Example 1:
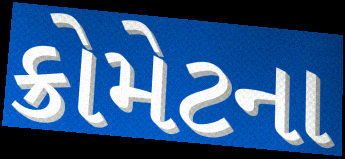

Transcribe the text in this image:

ક્રોમેટના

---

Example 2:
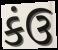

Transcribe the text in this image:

કંઉ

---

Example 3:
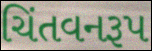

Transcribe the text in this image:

ચિંતવનરૂપ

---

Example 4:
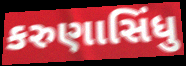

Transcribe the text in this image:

કરુણાસિંધુ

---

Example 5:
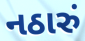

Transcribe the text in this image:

નઠારું